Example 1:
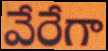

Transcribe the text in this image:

వేరేగా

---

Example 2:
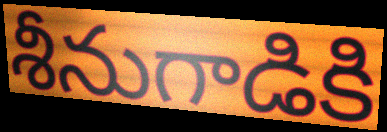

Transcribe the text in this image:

శీనుగాడికి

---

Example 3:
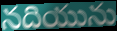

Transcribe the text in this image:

నదియును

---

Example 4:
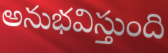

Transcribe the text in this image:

అనుభవిస్తుంది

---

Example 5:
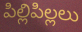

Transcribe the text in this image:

పిల్లిపిల్లలు